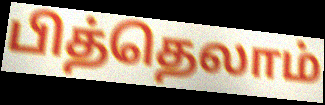
பித்தெலாம்